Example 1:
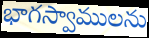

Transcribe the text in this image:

భాగస్వాములను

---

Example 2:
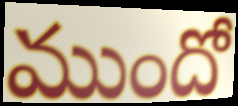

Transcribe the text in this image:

ముందో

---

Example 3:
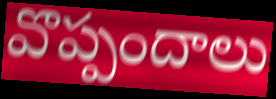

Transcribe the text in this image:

వొప్పందాలు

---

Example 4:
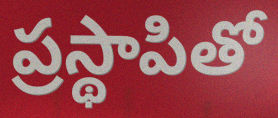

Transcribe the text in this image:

ప్రస్థాపితో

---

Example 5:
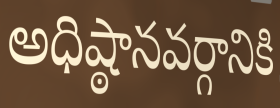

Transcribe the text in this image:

అధిష్ఠానవర్గానికి